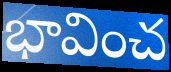
భావించ